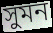
সুমন